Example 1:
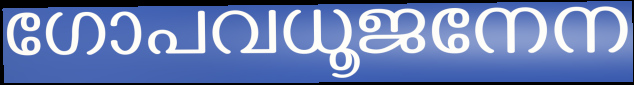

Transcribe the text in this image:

ഗോപവധൂജനേന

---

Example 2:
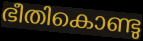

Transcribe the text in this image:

ഭീതികൊണ്ടു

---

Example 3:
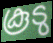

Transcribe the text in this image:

കൂടു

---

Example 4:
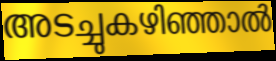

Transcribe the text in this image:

അടച്ചുകഴിഞ്ഞാൽ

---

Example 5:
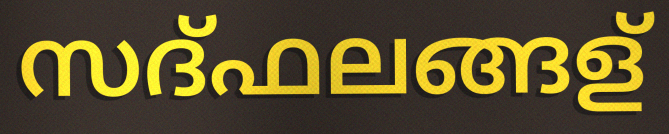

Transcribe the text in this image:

സദ്ഫലങ്ങള്